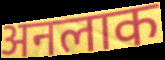
अनलाक